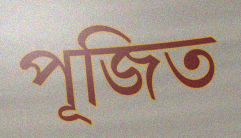
পূজিত